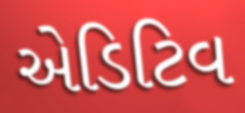
એડિટિવ